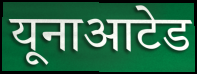
यूनाआटेड